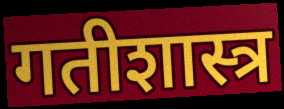
गतीशास्त्र